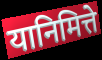
यानिमित्ते